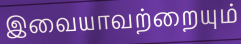
இவையாவற்றையும்